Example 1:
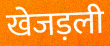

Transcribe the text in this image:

खेजड़ली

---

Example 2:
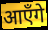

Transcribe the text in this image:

आएँगे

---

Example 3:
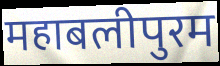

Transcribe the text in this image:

महाबलीपुरम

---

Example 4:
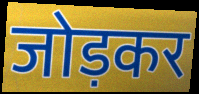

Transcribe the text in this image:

जोड़कर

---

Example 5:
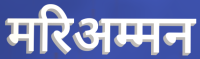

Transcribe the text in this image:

मरिअम्मन